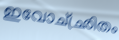
ഇവോച്ഛ്രിതം